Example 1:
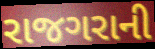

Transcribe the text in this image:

રાજગરાની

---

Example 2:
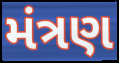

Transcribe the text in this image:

મંત્રણ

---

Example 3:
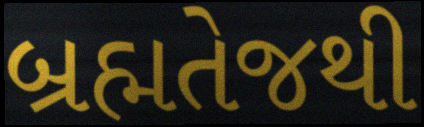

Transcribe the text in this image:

બ્રહ્મતેજથી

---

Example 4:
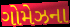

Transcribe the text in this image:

ગોમેઝના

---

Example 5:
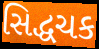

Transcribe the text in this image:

સિદ્ધચક